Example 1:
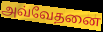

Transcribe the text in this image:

அவ்வேதனை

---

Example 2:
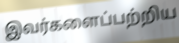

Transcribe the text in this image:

இவர்களைப்பற்றிய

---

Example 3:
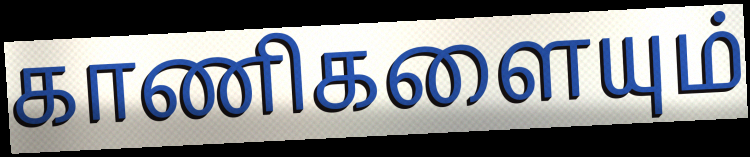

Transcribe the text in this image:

காணிகளையும்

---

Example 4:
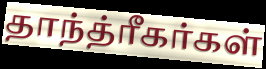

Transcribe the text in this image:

தாந்த்ரீகர்கள்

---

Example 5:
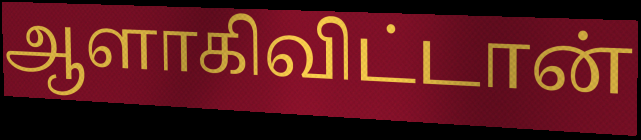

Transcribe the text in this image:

ஆளாகிவிட்டான்